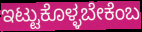
ಇಟ್ಟುಕೊಳ್ಳಬೇಕೆಂಬ